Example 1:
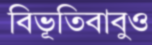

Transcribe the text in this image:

বিভূতিবাবুও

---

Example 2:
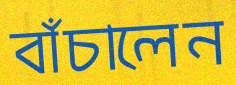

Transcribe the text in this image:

বাঁচালেন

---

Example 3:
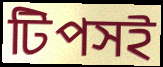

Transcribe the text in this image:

টিপসই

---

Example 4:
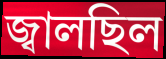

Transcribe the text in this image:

জ্বালছিল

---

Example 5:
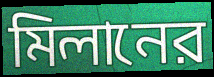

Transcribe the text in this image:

মিলানের